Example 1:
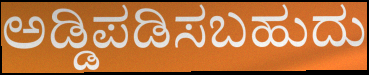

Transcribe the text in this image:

ಅಡ್ಡಿಪಡಿಸಬಹುದು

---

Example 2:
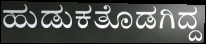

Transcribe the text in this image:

ಹುಡುಕತೊಡಗಿದ್ದ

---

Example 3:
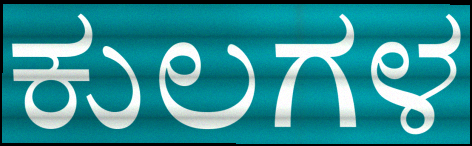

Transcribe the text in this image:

ಕುಲಗಳ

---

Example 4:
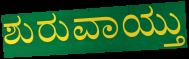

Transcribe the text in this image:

ಶುರುವಾಯ್ತು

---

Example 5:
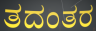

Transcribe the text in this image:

ತದಂತರ